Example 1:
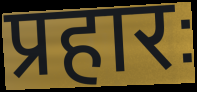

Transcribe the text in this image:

प्रहारः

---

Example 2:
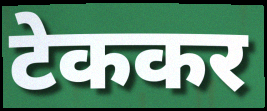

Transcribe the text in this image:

टेककर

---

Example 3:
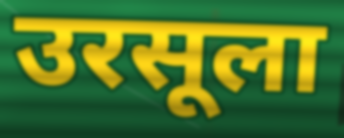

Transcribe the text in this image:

उरसूला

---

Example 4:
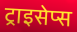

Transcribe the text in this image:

ट्राइसेप्स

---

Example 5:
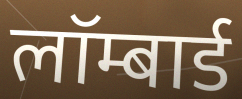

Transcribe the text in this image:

लॉम्बार्ड